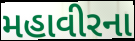
મહાવીરના